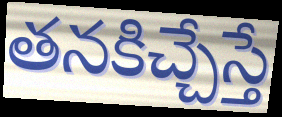
తనకిచ్చేస్తే